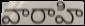
వారాహి